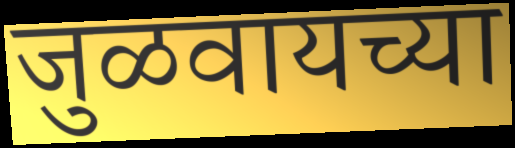
जुळवायच्या